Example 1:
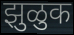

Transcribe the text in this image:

झुळुक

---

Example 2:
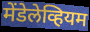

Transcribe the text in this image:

मेंडेलेव्हियम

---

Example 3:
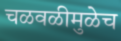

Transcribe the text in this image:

चळवळीमुळेच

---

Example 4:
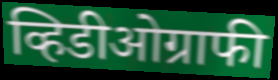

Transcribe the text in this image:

व्हिडीओग्राफी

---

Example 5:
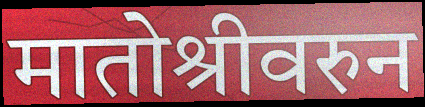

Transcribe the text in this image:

मातोश्रीवरुन